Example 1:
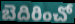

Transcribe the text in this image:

బెదిరించో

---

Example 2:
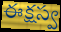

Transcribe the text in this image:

ఈక్షస్వ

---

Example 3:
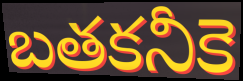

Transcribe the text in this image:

బతకనీకె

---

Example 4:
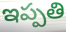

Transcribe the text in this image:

ఇప్పతి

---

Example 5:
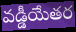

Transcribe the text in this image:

వడ్డీయేతర